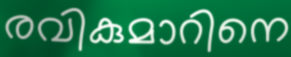
രവികുമാറിനെ